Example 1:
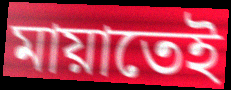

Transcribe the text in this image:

মায়াতেই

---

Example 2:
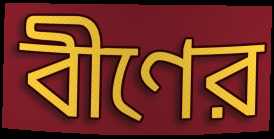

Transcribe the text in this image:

বীণের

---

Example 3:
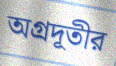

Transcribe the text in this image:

অগ্রদূতীর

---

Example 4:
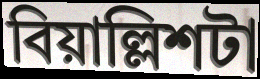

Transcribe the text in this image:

বিয়াল্লিশটা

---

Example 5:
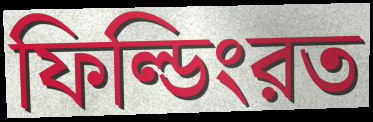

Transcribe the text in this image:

ফিল্ডিংরত